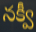
నక్వీ